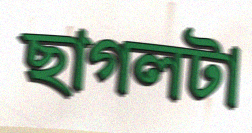
ছাগলটা